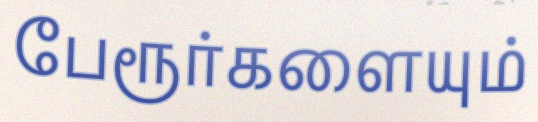
பேரூர்களையும்